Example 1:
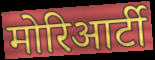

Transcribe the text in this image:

मोरिआर्टी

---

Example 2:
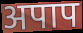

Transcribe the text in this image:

अपाप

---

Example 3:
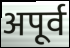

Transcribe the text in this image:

अपूर्व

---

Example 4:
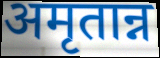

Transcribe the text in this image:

अमृतान्न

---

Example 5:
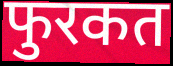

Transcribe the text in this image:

फुरकत